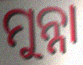
ମୁନ୍ନା